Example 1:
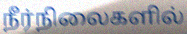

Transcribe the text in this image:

நீர்நிலைகளில்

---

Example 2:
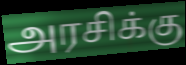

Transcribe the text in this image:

அரசிக்கு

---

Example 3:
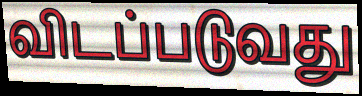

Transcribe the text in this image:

விடப்படுவது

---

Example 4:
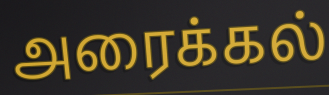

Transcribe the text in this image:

அரைக்கல்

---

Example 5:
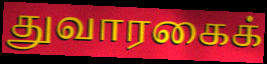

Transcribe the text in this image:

துவாரகைக்